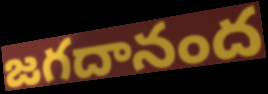
జగదానంద